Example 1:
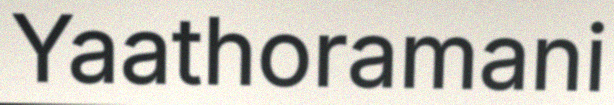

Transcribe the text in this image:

Yaathoramani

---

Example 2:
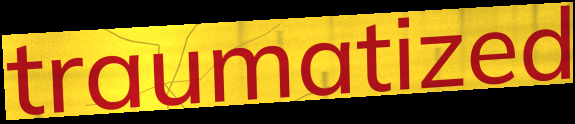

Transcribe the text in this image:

traumatized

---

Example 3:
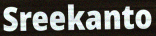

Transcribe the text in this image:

Sreekanto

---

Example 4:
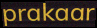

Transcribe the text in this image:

prakaar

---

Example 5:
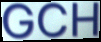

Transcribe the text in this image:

GCH